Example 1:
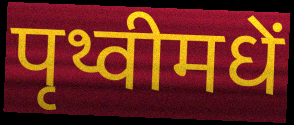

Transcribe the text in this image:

पृथ्वीमधें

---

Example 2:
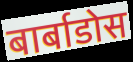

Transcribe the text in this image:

बार्बाडोस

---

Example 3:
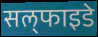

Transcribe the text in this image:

सल्फाइडे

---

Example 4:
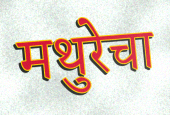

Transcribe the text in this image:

मथुरेचा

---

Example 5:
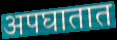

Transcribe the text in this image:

अपघातात